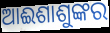
ଆଈଶାଶୁଙ୍କର